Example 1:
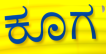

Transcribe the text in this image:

ಕೂಗ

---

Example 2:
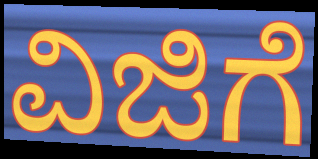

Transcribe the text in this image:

ವಿಜಿಗೆ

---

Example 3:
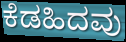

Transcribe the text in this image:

ಕೆಡಹಿದವು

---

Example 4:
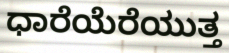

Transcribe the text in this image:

ಧಾರೆಯೆರೆಯುತ್ತ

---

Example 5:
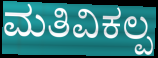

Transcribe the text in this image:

ಮತಿವಿಕಲ್ಪ